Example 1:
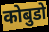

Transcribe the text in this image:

कोबुडो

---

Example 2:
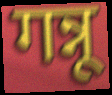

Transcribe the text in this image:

गन्नू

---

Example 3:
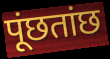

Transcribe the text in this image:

पूंछतांछ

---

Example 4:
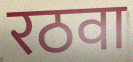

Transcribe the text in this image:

रठवा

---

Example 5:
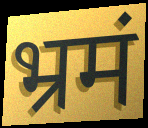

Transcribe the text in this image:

भ्रमं